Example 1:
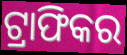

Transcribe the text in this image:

ଟ୍ରାଫିକର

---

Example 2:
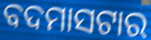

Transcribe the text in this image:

ବଦମାସଟାର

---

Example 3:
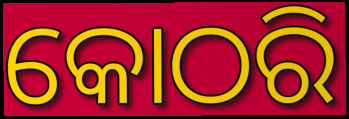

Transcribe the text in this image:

କୋଠରି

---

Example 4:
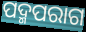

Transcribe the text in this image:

ପଦ୍ମପରାଗ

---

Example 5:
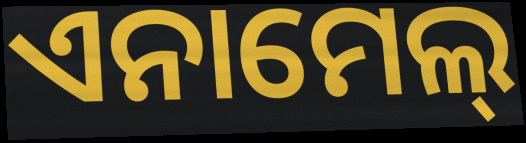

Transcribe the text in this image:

ଏନାମେଲ୍